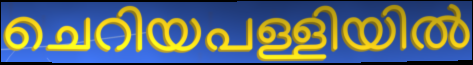
ചെറിയപള്ളിയിൽ